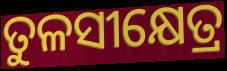
ତୁଳସୀକ୍ଷେତ୍ର